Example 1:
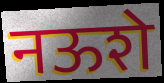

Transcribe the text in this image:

नऊशे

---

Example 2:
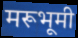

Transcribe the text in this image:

मरूभूमी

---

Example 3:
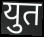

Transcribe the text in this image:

युत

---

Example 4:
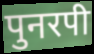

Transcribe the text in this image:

पुनरपी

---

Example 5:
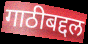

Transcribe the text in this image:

गाठीबद्दल